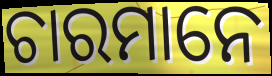
ଚାରମାନେ